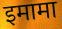
इमामा